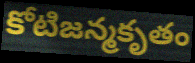
కోటిజన్మకృతం